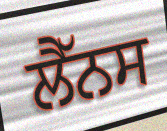
ਲੈੱਨਸ